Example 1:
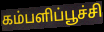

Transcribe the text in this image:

கம்பளிப்பூச்சி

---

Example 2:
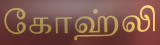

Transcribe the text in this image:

கோஹ்லி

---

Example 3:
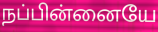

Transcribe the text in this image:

நப்பின்னையே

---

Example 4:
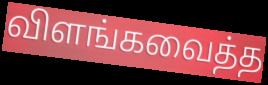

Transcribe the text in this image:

விளங்கவைத்த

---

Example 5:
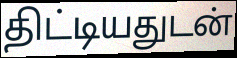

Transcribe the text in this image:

திட்டியதுடன்